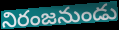
నిరంజనుండు